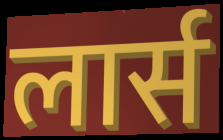
लार्स